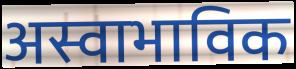
अस्वाभाविक